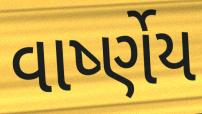
વાર્ષ્ણેય